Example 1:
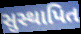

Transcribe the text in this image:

સુસ્થાપિત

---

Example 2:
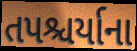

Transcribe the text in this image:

તપશ્ચર્યાના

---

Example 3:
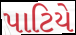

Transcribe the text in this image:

પાટિયે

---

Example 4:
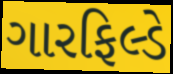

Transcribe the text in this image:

ગારફિલ્ડે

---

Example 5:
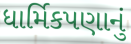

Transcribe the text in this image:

ધાર્મિકપણાનું